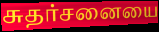
சுதர்சனையை